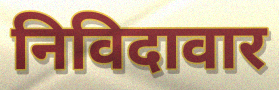
निविदावार